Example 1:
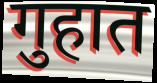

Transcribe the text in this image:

गुहात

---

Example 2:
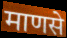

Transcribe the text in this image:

माणसे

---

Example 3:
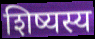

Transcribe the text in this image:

शिष्यस्य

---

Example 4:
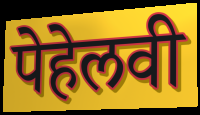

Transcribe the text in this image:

पेहेलवी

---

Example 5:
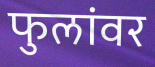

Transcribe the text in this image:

फुलांवर